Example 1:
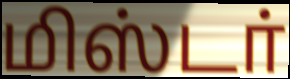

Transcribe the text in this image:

மிஸ்டர்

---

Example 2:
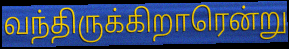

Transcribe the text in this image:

வந்திருக்கிறாரென்று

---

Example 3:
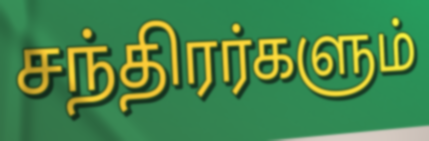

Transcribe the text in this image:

சந்திரர்களும்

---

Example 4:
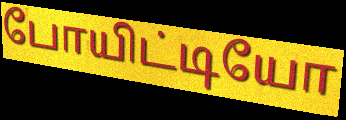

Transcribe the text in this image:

போயிட்டியோ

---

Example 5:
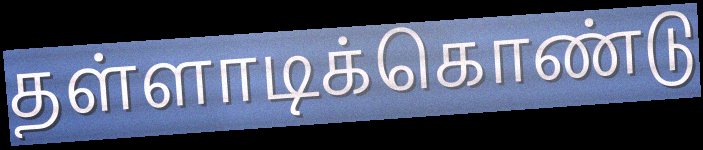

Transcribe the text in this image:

தள்ளாடிக்கொண்டு